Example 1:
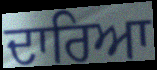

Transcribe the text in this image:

ਦਾਰਿਆ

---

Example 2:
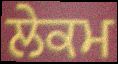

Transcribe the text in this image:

ਲੇਕਮ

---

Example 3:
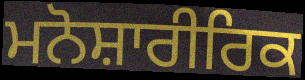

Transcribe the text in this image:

ਮਨੋਸ਼ਾਰੀਰਿਕ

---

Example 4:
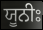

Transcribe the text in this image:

ਯੂਨੀਃ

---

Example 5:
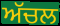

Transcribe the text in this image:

ਅੱਚਲ